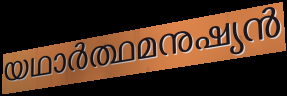
യഥാർത്ഥമനുഷ്യൻ